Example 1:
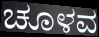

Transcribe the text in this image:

ಚೂಳವ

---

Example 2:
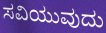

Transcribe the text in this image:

ಸವಿಯುವುದು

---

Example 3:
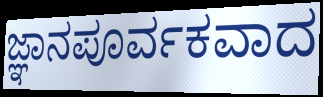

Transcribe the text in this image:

ಜ್ಞಾನಪೂರ್ವಕವಾದ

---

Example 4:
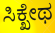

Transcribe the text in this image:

ಸಿಕ್ಖೇಥ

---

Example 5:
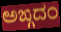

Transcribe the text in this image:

ಅಙ್ಗದಂ